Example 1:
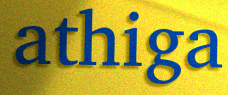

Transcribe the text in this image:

athiga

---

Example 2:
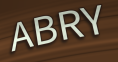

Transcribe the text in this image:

ABRY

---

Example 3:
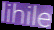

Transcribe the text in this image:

lihile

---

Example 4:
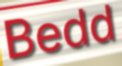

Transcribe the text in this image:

Bedd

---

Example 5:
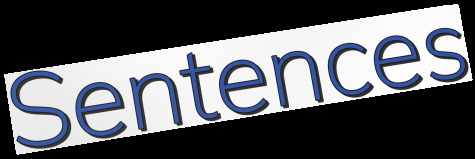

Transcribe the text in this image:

Sentences